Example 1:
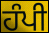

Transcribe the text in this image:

ਹੰਪੀ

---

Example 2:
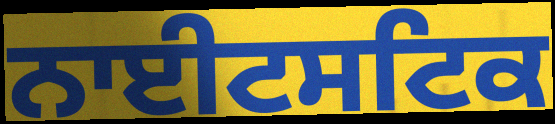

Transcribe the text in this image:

ਨਾਈਟਸਟਿਕ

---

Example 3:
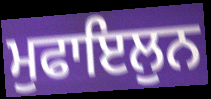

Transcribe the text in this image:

ਮੁਫਾਇਲੁਨ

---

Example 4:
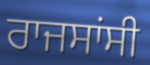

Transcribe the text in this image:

ਰਾਜਸਾਂਸੀ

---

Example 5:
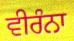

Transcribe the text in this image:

ਵੀਰੰਨਾ